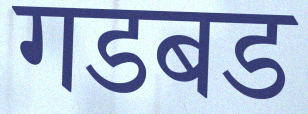
गडबड